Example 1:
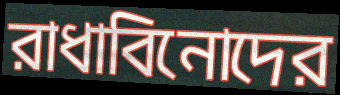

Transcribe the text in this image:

রাধাবিনোদের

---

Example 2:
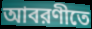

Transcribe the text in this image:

আবরণীতে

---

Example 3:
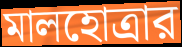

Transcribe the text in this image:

মালহোত্রার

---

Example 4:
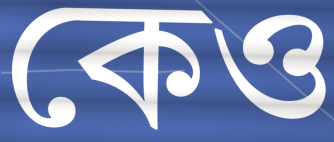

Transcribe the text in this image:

কেও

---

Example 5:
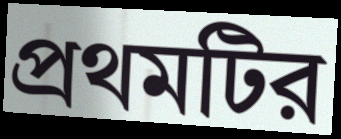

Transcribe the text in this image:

প্রথমটির